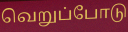
வெறுப்போடு